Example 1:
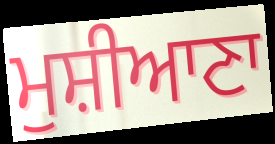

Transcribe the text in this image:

ਮੁਸ਼ੀਆਣਾ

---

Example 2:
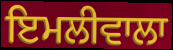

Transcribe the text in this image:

ਇਮਲੀਵਾਲਾ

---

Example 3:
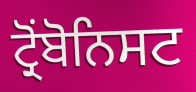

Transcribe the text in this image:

ਟ੍ਰੋਂਬੋਨਿਸਟ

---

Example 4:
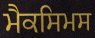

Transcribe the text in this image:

ਮੈਕਸਿਮਸ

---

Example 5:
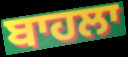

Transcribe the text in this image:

ਬਾਹਲਾ